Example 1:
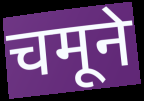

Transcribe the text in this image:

चमूने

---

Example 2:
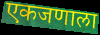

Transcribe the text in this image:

एकजणाला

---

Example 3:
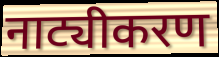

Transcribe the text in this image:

नाट्यीकरण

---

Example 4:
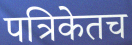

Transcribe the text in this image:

पत्रिकेतच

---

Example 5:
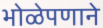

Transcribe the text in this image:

भोळेपणाने